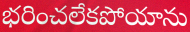
భరించలేకపోయాను